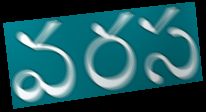
వరస